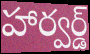
హార్వర్డ్